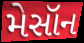
મેસૉન